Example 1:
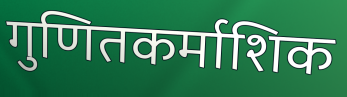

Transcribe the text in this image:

गुणितकर्माशिक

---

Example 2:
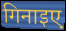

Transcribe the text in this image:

गिनाइए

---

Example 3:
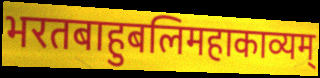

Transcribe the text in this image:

भरतबाहुबलिमहाकाव्यम्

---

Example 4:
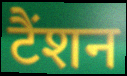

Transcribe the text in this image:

टैंशन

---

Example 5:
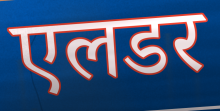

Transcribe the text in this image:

एलडर